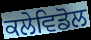
ਕਲੇਵਿਡੋਲ